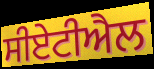
ਸੀਏਟੀਐਲ